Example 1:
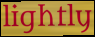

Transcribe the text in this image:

lightly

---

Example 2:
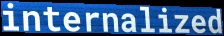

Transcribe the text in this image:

internalized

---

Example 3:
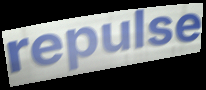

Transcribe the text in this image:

repulse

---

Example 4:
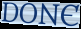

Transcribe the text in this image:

DONE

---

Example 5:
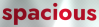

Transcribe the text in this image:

spacious